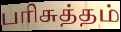
பரிசுத்தம்